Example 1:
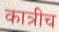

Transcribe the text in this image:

कात्रीच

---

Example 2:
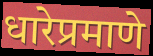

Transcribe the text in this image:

धारेप्रमाणे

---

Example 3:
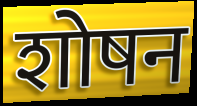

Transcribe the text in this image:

शोषन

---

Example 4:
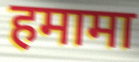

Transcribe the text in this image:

हमामा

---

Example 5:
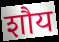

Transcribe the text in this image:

शौय